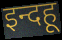
इन्दहू